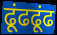
ढूंढढूंढ